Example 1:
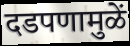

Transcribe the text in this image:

दडपणामुळें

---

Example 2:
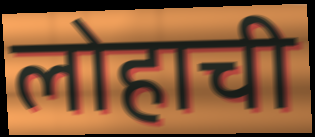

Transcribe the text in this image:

लोहाची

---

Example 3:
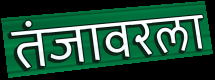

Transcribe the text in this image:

तंजावरला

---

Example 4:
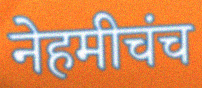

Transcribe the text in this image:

नेहमीचंच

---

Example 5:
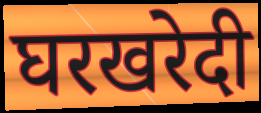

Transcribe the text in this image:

घरखरेदी